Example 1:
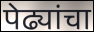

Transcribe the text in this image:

पेढ्यांचा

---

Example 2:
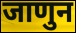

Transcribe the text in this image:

जाणुन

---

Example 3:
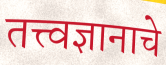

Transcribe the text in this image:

तत्त्वज्ञानाचे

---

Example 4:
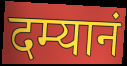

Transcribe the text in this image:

दम्यानं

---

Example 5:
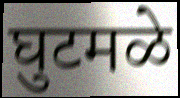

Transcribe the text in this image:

घुटमळे